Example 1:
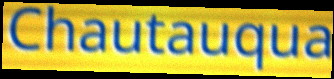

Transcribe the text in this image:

Chautauqua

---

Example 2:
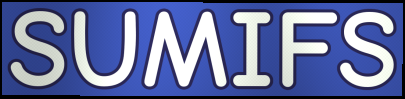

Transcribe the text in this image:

SUMIFS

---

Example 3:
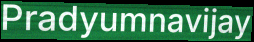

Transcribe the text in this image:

Pradyumnavijay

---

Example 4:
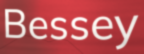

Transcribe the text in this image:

Bessey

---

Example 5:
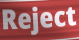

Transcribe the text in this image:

Reject